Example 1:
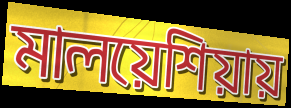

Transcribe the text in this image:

মালয়েশিয়ায়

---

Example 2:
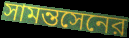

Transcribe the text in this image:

সামন্তসেনের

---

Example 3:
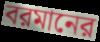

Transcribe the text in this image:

বরমানের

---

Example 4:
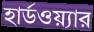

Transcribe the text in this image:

হার্ডওয়্যার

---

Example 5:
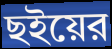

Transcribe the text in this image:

ছইয়ের